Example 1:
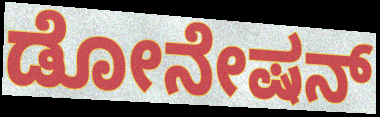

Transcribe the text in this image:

ಡೋನೇಷನ್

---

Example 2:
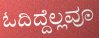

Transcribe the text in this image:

ಓದಿದ್ದೆಲ್ಲವೂ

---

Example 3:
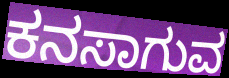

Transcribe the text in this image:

ಕನಸಾಗುವ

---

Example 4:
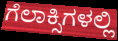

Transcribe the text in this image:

ಗೆಲಾಕ್ಸಿಗಳಲ್ಲಿ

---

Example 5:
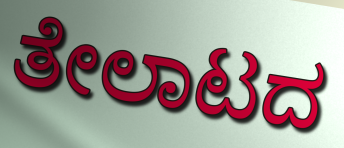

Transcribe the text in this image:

ತೇಲಾಟದ